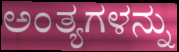
ಅಂತ್ಯಗಳನ್ನು